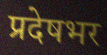
प्रदेषभर